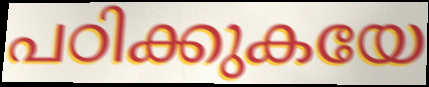
പഠിക്കുകയേ